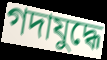
গদাযুদ্ধে